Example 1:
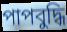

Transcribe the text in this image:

পাপবুদ্ধি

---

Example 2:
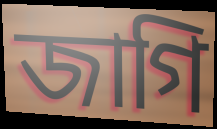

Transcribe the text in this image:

জাগি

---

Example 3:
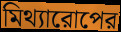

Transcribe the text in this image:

মিথ্যারোপের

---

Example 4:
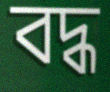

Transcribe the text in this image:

বদ্ধ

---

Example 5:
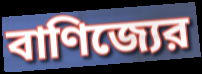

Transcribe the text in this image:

বাণিজ্যের